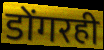
डोंगरही